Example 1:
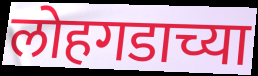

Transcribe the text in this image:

लोहगडाच्या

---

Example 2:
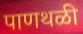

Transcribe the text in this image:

पाणथळी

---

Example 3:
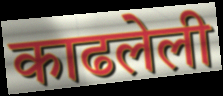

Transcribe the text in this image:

काढलेली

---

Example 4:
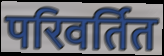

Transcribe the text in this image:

परिवर्तित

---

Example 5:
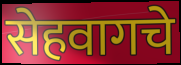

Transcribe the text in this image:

सेहवागचे